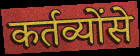
कर्तव्योंसे